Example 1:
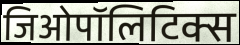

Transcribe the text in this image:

जिओपॉलिटिक्स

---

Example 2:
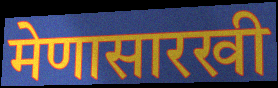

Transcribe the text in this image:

मेणासारखी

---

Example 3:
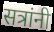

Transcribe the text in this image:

सत्रांनी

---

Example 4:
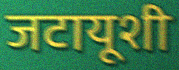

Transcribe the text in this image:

जटायूशी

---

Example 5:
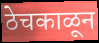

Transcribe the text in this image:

ठेचकाळून